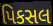
પિકસલ